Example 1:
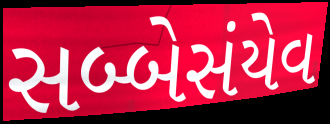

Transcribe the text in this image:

સબ્બેસંયેવ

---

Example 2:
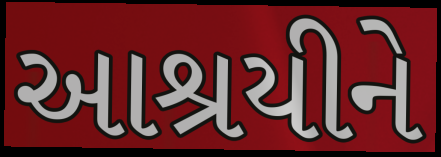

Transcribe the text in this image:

આશ્રયીને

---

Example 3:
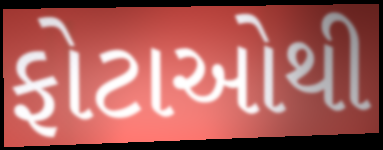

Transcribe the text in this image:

ફોટાઓથી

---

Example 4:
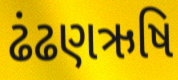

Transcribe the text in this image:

ઢંઢણઋષિ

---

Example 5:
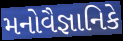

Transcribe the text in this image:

મનોવૈજ્ઞાનિકે